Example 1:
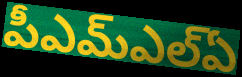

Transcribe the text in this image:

పీఎమ్ఎల్ఏ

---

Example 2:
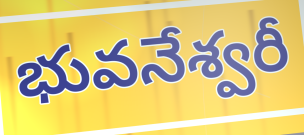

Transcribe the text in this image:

భువనేశ్వరీ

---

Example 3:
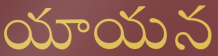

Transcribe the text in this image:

యాయన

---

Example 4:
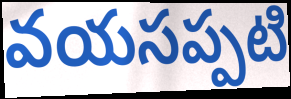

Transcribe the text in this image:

వయసప్పటి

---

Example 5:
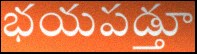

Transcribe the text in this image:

భయపడ్తూ